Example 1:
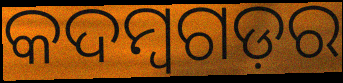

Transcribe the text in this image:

କଦମ୍ବଗଡ଼ର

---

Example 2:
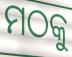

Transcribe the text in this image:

ମଠକୁ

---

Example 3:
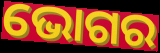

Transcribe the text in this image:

ଭୋଗର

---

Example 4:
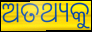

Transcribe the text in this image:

ଅତଥ୍ୟକୁ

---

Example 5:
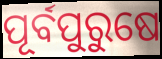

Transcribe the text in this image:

ପୂର୍ବପୁରୁଷେ